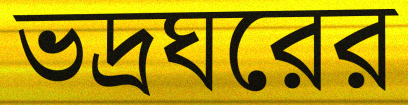
ভদ্রঘরের